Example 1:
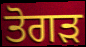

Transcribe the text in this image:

ਤੋਗੜ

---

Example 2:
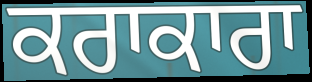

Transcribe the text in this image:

ਕਰਾਕਾਰਾ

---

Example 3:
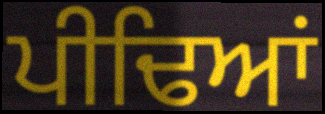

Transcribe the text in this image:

ਪੀਢਿਆਂ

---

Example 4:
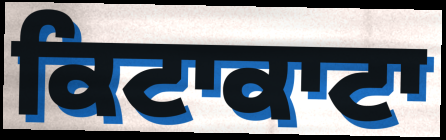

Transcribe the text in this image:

ਕਿਟਾਕਾਟਾ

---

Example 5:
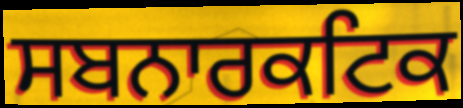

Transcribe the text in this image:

ਸਬਨਾਰਕਟਿਕ